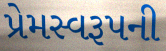
પ્રેમસ્વરૂપની